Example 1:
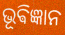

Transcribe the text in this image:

ଭୂଵିଜ୍ଞାନ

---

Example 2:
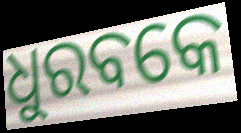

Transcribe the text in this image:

ଧୁରବକେ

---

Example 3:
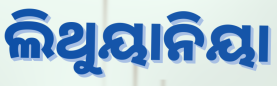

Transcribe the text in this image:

ଲିଥୁୟାନିୟା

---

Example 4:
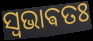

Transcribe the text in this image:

ସ୍ଵଭାଵତଃ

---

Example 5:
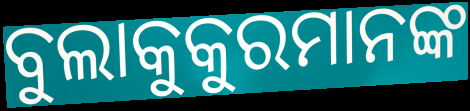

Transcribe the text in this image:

ବୁଲାକୁକୁରମାନଙ୍କ